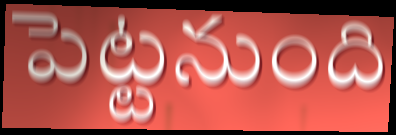
పెట్టనుంది